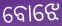
ବୋଝେ